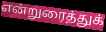
என்றுரைத்துக்